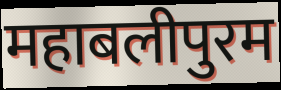
महाबलीपुरम